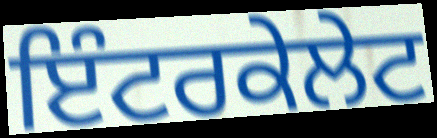
ਇੰਟਰਕੇਲੇਟ